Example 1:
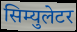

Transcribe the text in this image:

सिम्युलेटर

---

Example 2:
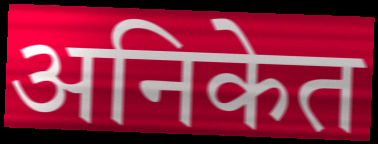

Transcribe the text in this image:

अनिकेत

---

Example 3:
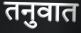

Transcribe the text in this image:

तनुवात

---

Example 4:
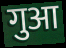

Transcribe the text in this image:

गुआ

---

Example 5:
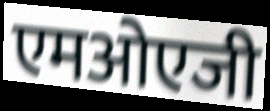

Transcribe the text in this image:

एमओएजी